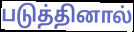
படுத்தினால்